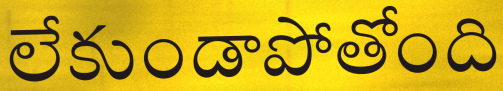
లేకుండాపోతోంది